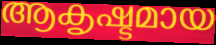
ആകൃഷ്ടമായ